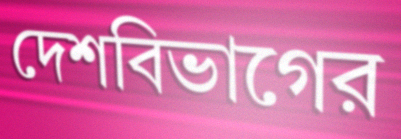
দেশবিভাগের